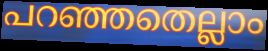
പറഞ്ഞതെല്ലാം